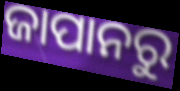
ଜାପାନରୁ